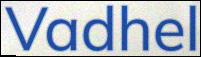
Vadhel